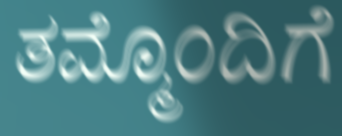
ತಮ್ಮೊಂದಿಗೆ